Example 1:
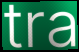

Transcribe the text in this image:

tra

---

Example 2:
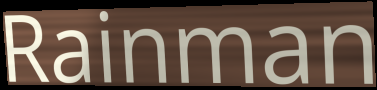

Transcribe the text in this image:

Rainman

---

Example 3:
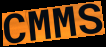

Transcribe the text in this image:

CMMS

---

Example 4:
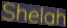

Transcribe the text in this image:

Shelah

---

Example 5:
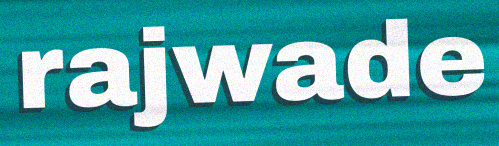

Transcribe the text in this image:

rajwade